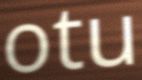
otu